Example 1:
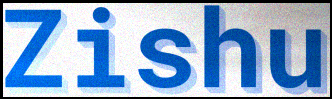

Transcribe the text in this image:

Zishu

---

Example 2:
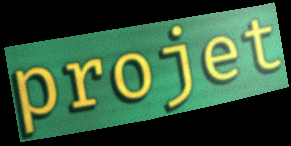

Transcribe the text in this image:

projet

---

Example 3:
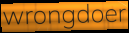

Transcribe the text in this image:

wrongdoer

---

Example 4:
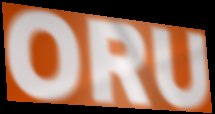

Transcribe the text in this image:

ORU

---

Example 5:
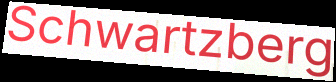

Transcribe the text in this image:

Schwartzberg